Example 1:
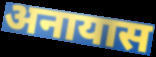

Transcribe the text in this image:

अनायास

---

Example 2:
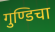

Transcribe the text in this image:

गुण्डिचा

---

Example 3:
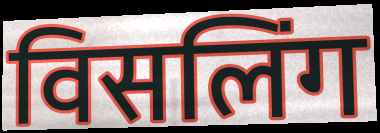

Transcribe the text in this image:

विसलिंग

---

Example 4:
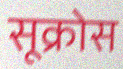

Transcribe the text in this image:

सूक्रोस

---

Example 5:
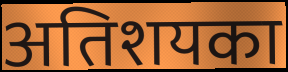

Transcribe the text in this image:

अतिशयका